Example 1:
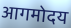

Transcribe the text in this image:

आगमोदय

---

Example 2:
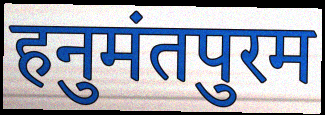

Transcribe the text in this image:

हनुमंतपुरम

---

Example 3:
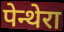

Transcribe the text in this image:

पेन्थेरा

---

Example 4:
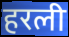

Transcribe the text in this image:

हरली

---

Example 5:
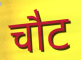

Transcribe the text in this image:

चौट